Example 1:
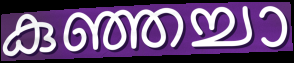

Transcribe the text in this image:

കുഞ്ഞച്ചാ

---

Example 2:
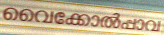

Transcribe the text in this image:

വൈക്കോൽപ്പാവ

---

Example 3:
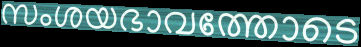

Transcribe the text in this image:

സംശയഭാവത്തോടെ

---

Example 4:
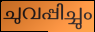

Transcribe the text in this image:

ചുവപ്പിച്ചും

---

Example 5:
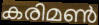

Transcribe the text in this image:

കരിമൺ